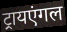
ट्रायएंगल